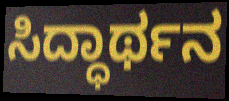
ಸಿದ್ಧಾರ್ಥನ